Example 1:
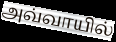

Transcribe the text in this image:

அவ்வாயில்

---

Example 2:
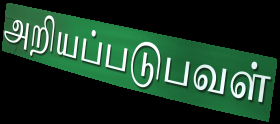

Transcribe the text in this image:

அறியப்படுபவள்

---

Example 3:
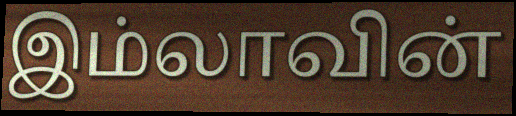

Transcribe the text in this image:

இம்லாவின்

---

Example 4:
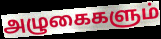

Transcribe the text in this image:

அழுகைகளும்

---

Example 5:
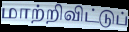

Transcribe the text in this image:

மாற்றிவிட்டுப்